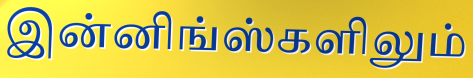
இன்னிங்ஸ்களிலும்